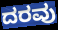
ದರವು